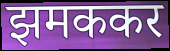
झमककर